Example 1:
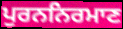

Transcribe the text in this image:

ਪੁਰਨਨਿਰਮਾਣ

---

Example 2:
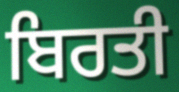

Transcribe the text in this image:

ਬਿਰਤੀ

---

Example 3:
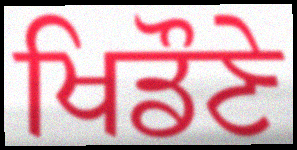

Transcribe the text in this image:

ਖਿਡੌਣੇ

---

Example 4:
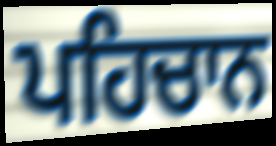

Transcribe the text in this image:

ਪਹਿਚਾਨ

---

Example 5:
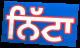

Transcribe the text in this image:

ਨਿੱਟਾ